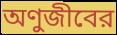
অণুজীবের